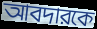
আবদারকে